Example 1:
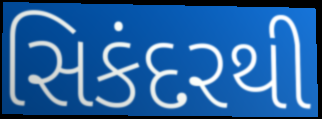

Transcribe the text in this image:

સિકંદરથી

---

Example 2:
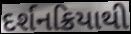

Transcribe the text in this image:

દર્શનક્રિયાથી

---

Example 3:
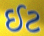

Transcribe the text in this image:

ઈટ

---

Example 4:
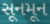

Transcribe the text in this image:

સૂનમૂન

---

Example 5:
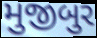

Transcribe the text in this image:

મુજીબુર